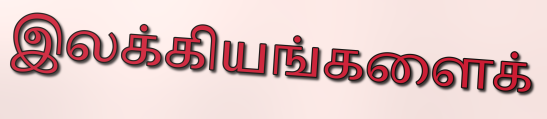
இலக்கியங்களைக்